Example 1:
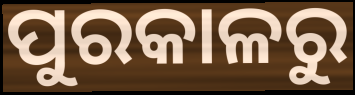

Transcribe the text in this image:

ପୁରକାଳରୁ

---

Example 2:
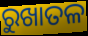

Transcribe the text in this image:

ରୁଖାତଳ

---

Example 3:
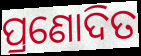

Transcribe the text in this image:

ପ୍ରଣୋଦିତ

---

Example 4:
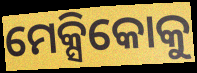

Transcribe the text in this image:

ମେକ୍ସିକୋକୁ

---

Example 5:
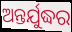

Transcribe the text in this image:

ଅନ୍ତର୍ଯୁଦ୍ଧର